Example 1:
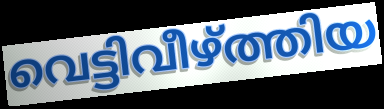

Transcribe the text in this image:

വെട്ടിവീഴ്ത്തിയ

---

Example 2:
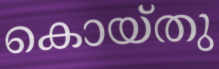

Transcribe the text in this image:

കൊയ്തു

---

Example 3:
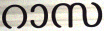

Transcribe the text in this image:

റാസ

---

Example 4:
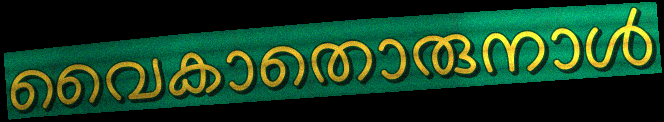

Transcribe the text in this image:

വൈകാതൊരുനാൾ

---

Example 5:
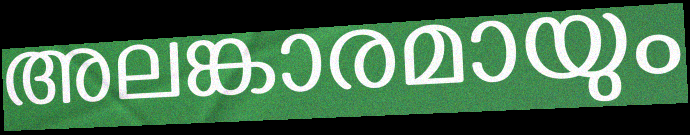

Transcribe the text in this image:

അലങ്കാരമായും